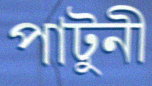
পাটুনী